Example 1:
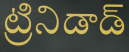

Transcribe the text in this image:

ట్రినిడాడ్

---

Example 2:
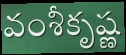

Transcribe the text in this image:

వంశీకృష్ణ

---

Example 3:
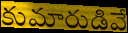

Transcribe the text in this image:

కుమారుడివే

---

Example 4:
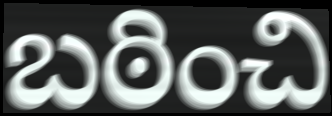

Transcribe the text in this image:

బఠించి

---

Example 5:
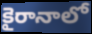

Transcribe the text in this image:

కైరానాలో